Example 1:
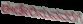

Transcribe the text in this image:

ಈಡೇರಿಸುವವರೆಗೆ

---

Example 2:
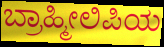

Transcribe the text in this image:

ಬ್ರಾಹ್ಮೀಲಿಪಿಯ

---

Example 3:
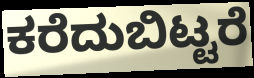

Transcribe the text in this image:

ಕರೆದುಬಿಟ್ಟರೆ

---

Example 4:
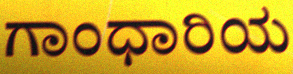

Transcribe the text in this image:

ಗಾಂಧಾರಿಯ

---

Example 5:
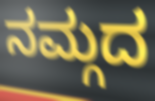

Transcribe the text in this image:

ನಮ್ಗದ